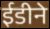
ईडीने